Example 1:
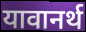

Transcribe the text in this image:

यावानर्थ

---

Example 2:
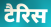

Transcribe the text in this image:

टैरिस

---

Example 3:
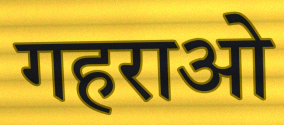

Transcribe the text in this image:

गहराओ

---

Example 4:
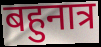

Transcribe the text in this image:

बहुनात्र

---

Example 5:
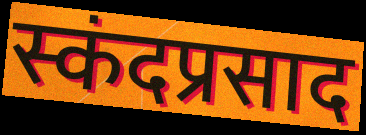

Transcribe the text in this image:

स्कंदप्रसाद